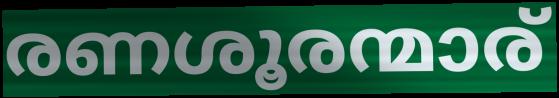
രണശൂരന്മാര്